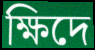
ক্ষিদে